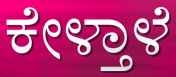
ಕೇಳ್ತಾಳೆ